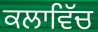
ਕਲਾਵਿੱਚ